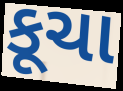
કૂચા